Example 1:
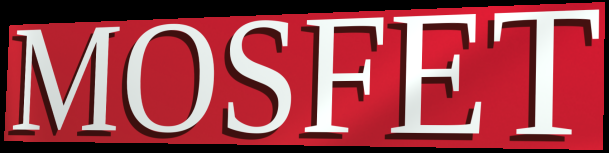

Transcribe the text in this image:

MOSFET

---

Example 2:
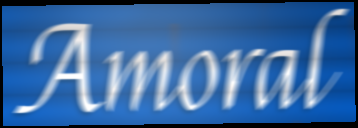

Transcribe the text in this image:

Amoral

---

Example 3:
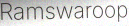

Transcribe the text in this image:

Ramswaroop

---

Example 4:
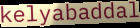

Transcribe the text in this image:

kelyabaddal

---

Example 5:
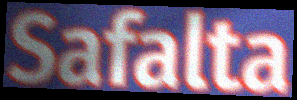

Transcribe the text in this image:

Safalta